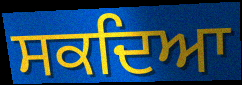
ਸਕਦਿਆ